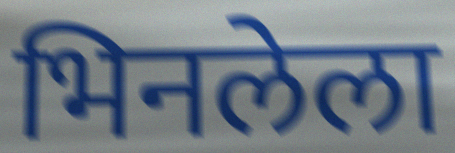
भिनलेला